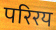
परिरय